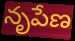
నృపేణ